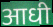
आधी